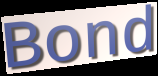
Bond